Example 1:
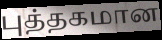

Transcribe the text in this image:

புத்தகமான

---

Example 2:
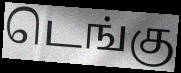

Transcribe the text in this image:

டெங்கு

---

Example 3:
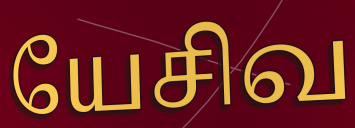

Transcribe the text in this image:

யேசிவ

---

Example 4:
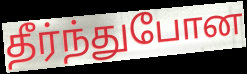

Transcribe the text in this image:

தீர்ந்துபோன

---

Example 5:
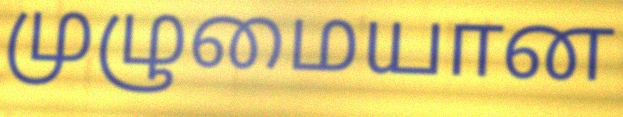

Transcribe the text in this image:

முழுமையான